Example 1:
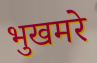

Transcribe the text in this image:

भुखमरे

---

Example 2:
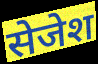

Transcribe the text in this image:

सेजेश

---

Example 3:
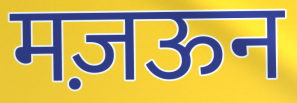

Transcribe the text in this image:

मज़ऊन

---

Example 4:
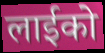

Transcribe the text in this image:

लाईको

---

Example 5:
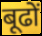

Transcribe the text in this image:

बूढों